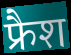
फ्रैश